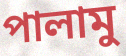
পালামু